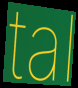
tal